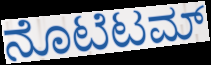
ನೊಟೆಟಮ್